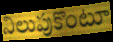
నిలుపుకొంటూ